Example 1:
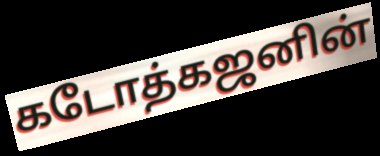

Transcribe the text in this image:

கடோத்கஜனின்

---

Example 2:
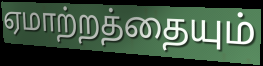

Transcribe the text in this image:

ஏமாற்றத்தையும்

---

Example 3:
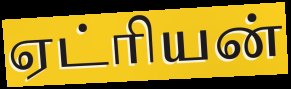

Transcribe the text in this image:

ஏட்ரியன்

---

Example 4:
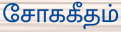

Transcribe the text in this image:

சோககீதம்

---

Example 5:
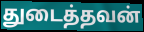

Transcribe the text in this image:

துடைத்தவன்